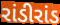
રાંડીરાંડ